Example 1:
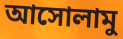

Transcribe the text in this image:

আসোলামু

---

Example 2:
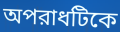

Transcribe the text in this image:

অপরাধটিকে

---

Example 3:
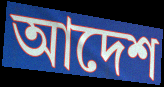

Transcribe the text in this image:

আদেশ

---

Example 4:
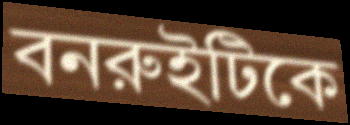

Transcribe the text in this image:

বনরুইটিকে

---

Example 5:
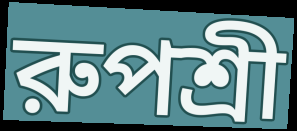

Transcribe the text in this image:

রুপশ্রী